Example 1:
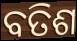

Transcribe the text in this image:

ବତିଶ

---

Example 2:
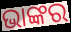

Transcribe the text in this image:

ଭାଙ୍କର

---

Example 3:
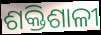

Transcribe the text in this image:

ଶକ୍ତିଶାଳୀ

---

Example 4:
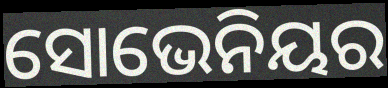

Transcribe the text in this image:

ସୋଭେନିୟର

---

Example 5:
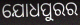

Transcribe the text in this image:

ଯୋଧପୁରର